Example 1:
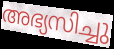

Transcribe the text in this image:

അഭ്യസിച്ചു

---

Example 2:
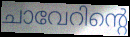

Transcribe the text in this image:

ചാവേറിന്റെ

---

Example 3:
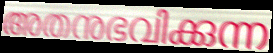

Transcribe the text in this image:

അതനുഭവിക്കുന്ന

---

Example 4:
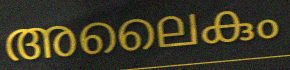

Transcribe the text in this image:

അലൈകും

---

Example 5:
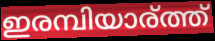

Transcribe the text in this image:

ഇരമ്പിയാര്ത്ത്